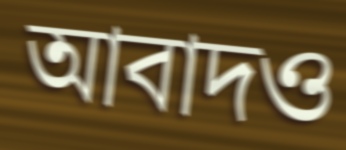
আবাদও